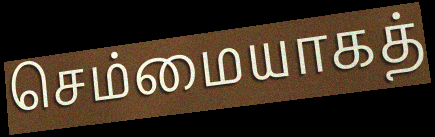
செம்மையாகத்